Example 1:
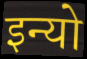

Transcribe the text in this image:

इन्यो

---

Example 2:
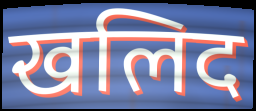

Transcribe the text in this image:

खलिद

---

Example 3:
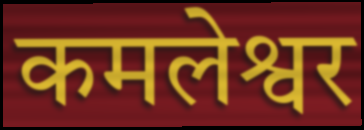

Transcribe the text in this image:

कमलेश्वर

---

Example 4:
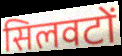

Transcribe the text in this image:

सिलवटों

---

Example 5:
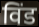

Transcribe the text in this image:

विंड